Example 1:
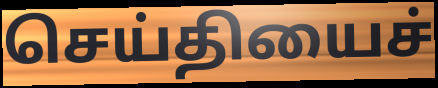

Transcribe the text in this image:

செய்தியைச்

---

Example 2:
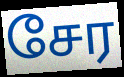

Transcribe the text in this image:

சேர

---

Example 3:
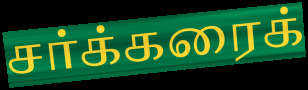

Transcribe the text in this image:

சர்க்கரைக்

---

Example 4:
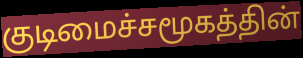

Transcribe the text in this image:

குடிமைச்சமூகத்தின்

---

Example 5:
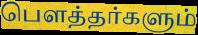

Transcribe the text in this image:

பௌத்தர்களும்